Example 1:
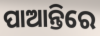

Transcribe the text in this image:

ପାଆନ୍ତିରେ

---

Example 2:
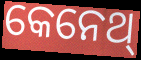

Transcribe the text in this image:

କେନେଥ୍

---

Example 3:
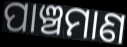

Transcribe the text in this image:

ପାଞ୍ଚମାଣ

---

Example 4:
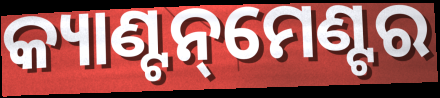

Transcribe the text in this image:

କ୍ୟାଣ୍ଟନ୍‌ମେଣ୍ଟର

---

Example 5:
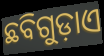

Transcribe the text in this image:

ଛବିଗୁଡ଼ାଏ